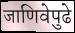
जाणिवेपुढे